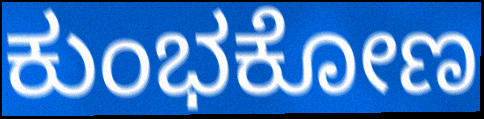
ಕುಂಭಕೋಣ